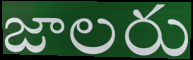
జాలరు